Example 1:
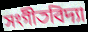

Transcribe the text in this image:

সংগীতবিদ্যা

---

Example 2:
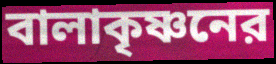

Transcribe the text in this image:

বালাকৃষ্ণনের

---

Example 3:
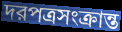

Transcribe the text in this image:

দরপত্রসংক্রান্ত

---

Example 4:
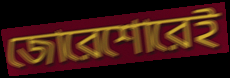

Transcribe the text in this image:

জোরেশোরেই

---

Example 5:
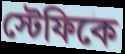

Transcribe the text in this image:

স্টেফিকে